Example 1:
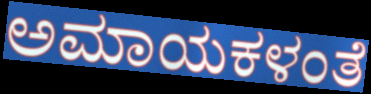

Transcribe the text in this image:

ಅಮಾಯಕಳಂತೆ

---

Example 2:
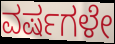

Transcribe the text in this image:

ವರ್ಷಗಳೇ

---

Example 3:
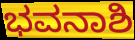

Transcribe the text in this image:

ಭವನಾಶಿ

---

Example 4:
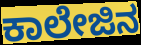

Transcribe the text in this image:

ಕಾಲೇಜಿನ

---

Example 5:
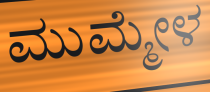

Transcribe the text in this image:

ಮುಮ್ಮೇಳ